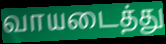
வாயடைத்து